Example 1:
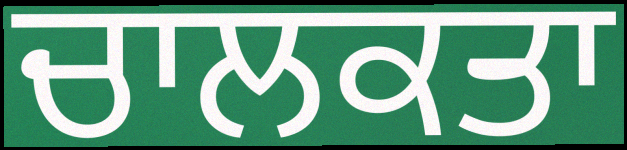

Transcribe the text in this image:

ਚਾਲਕਤਾ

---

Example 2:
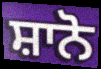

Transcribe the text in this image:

ਸ਼ਾਨੋ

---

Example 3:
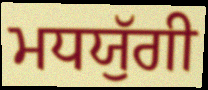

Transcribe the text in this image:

ਮਧਯੁੱਗੀ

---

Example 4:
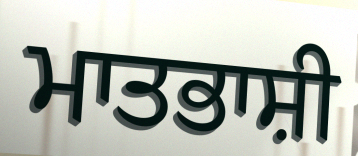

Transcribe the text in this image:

ਮਾਤਭਾਸ਼ੀ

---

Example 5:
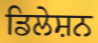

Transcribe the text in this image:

ਡਿਲੇਸ਼ਨ